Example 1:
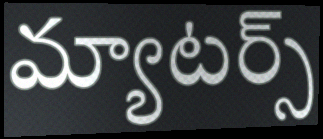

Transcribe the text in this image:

మ్యాటర్స్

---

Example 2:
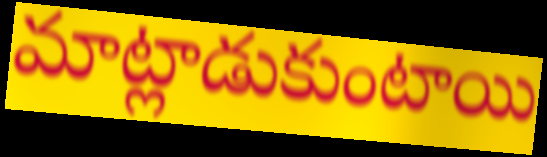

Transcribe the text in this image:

మాట్లాడుకుంటాయి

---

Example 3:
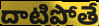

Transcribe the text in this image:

దాటిపోతే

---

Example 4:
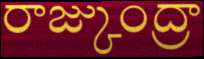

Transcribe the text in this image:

రాజ్కుంద్రా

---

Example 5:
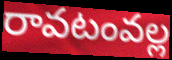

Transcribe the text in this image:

రావటంవల్ల